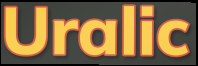
Uralic